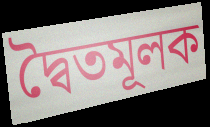
দ্বৈতমূলক